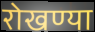
रोखण्या